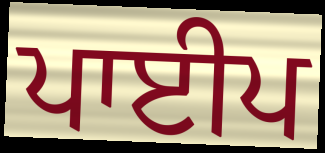
ਪਾਈਪ